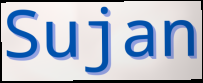
Sujan